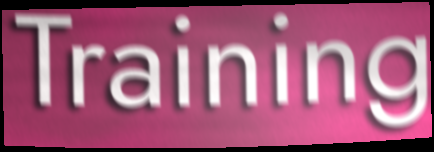
Training